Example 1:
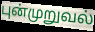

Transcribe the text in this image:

புன்முறுவல்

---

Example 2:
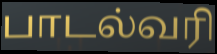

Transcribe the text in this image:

பாடல்வரி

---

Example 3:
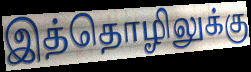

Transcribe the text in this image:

இத்தொழிலுக்கு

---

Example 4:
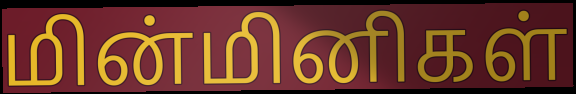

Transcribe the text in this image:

மின்மினிகள்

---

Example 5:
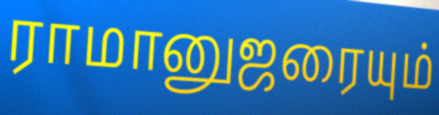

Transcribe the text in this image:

ராமானுஜரையும்